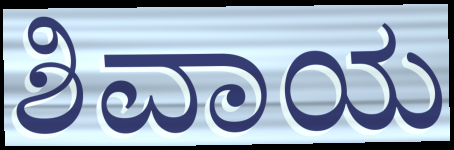
ಶಿವಾಯ